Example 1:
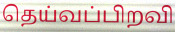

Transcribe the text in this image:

தெய்வப்பிறவி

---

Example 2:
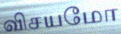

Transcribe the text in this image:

விசயமோ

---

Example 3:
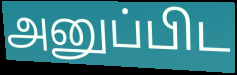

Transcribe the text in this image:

அனுப்பிட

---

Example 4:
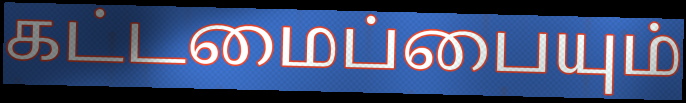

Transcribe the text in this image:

கட்டமைப்பையும்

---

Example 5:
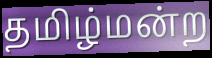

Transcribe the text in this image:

தமிழ்மன்ற